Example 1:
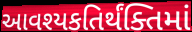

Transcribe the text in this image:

આવશ્યકતિર્થંક્તિમાં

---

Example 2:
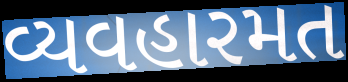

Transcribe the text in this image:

વ્યવહારમત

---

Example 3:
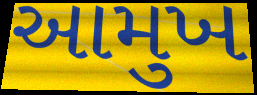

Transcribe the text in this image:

આમુખ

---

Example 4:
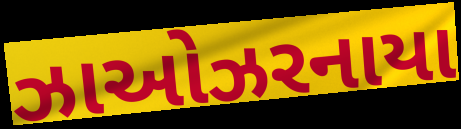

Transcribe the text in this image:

ઝાઓઝરનાયા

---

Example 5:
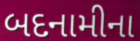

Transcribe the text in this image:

બદનામીના